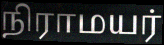
நிராமயர்